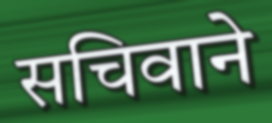
सचिवाने